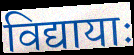
विद्यायाः